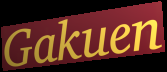
Gakuen